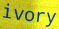
ivory